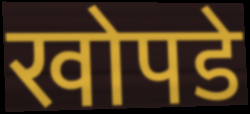
खोपडे